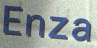
Enza